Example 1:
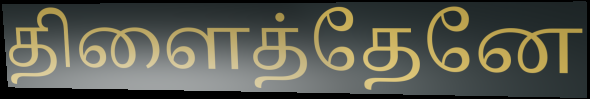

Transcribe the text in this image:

திளைத்தேனே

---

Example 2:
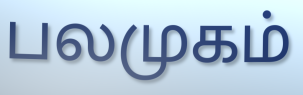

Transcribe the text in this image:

பலமுகம்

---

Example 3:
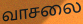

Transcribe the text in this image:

வாசலை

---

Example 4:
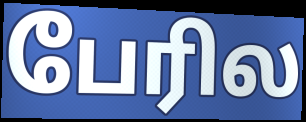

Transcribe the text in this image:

பேரில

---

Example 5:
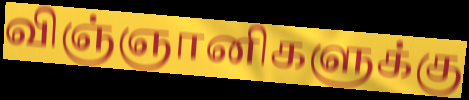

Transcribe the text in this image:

விஞ்ஞானிகளுக்கு